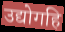
उद्योगहि